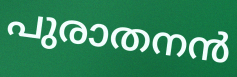
പുരാതനൻ